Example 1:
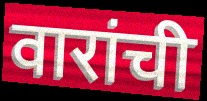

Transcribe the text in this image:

वारांची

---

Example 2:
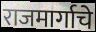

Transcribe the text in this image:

राजमार्गाचे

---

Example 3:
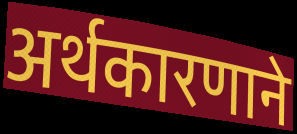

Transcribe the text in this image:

अर्थकारणाने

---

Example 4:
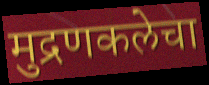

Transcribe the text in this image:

मुद्रणकलेचा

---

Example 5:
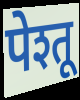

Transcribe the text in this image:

पेश्तू